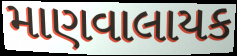
માણવાલાયક